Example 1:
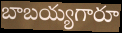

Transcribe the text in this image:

బాబయ్యగారూ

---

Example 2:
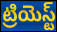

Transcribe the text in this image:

ట్రియెస్ట్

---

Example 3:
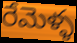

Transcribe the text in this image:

రేమెళ్ళ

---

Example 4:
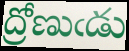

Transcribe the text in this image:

ద్రోణుఁడు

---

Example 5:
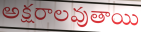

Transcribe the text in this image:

అక్షరాలవుతాయి